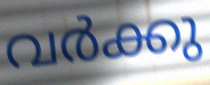
വർക്കു